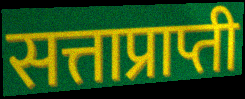
सत्ताप्राप्ती